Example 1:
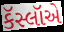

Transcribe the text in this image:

કૅસ્લૉએ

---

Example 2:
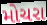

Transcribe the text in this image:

મોચરા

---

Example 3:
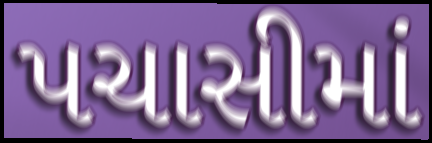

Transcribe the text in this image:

પચાસીમાં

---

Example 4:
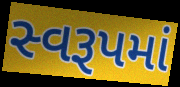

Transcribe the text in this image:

સ્વરૂપમાં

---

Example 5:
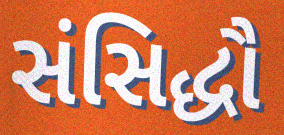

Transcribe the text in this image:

સંસિદ્ધૌ